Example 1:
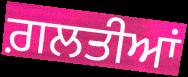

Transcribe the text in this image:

ਗ਼ਲਤੀਆਂ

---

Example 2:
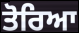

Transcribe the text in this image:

ਤੋਰਿਆ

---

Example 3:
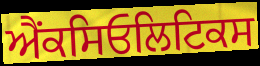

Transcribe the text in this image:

ਐਂਕਸਿਓਲਿਟਿਕਸ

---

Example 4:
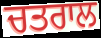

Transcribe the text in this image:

ਚਤਰਾਲ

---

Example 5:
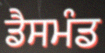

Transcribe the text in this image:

ਡੈਸਮੰਡ